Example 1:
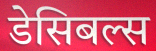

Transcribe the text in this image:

डेसिबल्स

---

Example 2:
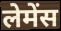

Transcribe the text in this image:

लेमेंस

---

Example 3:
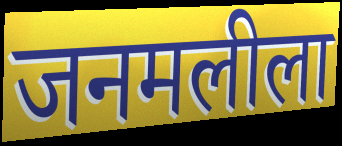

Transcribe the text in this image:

जनमलीला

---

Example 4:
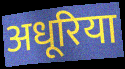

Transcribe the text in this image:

अधूरिया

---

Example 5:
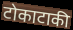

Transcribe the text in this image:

टोकाटाकी